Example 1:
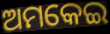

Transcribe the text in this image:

ଅମକେଇ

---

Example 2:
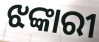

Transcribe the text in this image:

ଝଙ୍କାରୀ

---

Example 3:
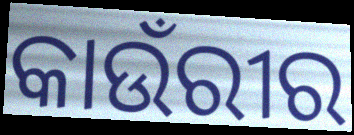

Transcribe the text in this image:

କାଉଁରୀର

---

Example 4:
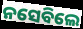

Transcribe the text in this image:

ନସେବିଲେ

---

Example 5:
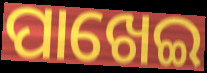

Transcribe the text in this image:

ପାଖେଇ